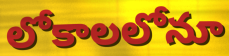
లోకాలలోనూ